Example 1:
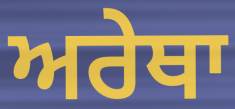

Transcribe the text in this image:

ਅਰੇਥਾ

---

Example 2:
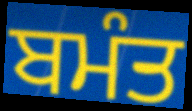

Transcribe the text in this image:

ਬਮੰਤ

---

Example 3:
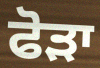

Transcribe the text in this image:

ਫੋੜਾ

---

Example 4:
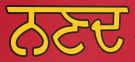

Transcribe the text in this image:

ਨਣਦ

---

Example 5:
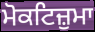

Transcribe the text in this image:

ਮੋਕਟਿਜ਼ੁਮਾ